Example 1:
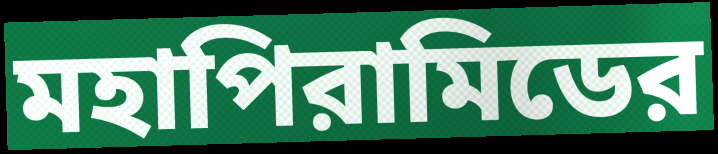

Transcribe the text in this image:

মহাপিরামিডের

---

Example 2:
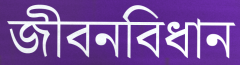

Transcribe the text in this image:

জীবনবিধান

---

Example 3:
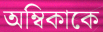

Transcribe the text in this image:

অম্বিকাকে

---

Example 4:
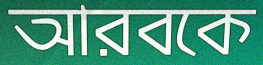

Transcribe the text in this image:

আরবকে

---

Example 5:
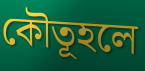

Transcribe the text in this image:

কৌতূহলে